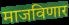
माजविणार